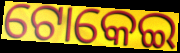
ଟୋକେଇ